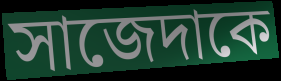
সাজেদাকে